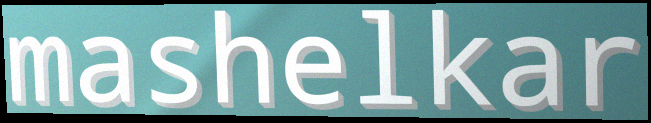
mashelkar